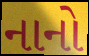
નાનો